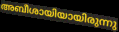
അബീശായിയായിരുന്നു